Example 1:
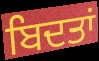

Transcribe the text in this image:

ਬਿਦਤਾਂ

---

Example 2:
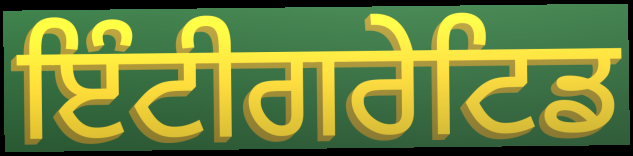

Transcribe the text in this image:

ਇੰਟੀਗਰੇਟਿਡ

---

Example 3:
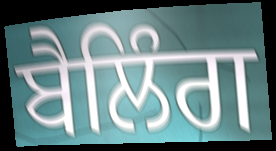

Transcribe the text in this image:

ਬੈਲਿੰਗ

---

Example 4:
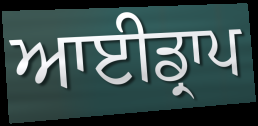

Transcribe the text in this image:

ਆਈਡ੍ਰਾਪ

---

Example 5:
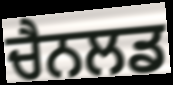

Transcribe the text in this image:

ਚੈਨਲਡ